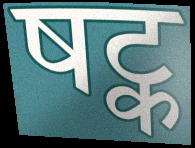
षट्क